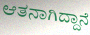
ಆತನಾಗಿದ್ದಾನೆ